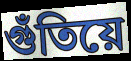
গুঁতিয়ে